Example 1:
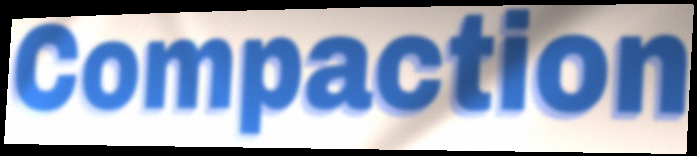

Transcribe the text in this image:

Compaction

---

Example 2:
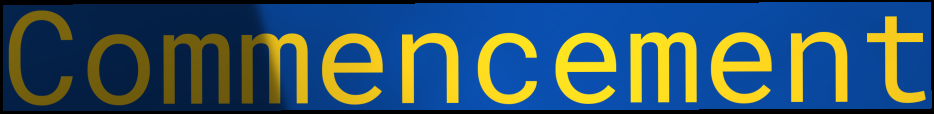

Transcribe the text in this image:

Commencement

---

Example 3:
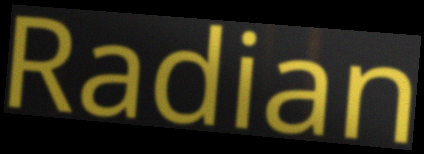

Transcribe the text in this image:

Radian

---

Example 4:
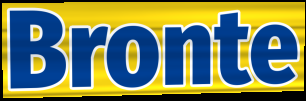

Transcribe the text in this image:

Bronte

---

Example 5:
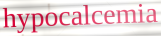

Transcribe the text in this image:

hypocalcemia